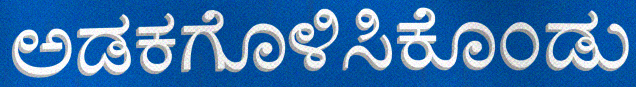
ಅಡಕಗೊಳಿಸಿಕೊಂಡು